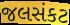
જલસંકટ